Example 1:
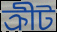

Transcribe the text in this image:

ক্রীট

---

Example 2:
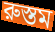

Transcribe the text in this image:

রুস্তম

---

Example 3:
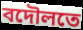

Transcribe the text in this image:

বদৌলতে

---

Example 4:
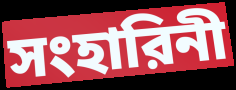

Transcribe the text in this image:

সংহারিনী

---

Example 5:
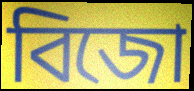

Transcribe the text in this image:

বিজো